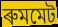
ৰুমমেট